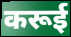
करूई